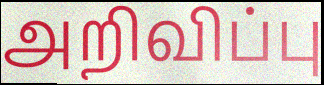
அறிவிப்பு